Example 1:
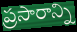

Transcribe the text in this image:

ప్రసారాన్ని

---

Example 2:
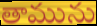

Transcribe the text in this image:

తామును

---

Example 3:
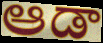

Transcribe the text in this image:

ఆడా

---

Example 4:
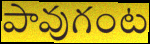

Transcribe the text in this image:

పావుగంట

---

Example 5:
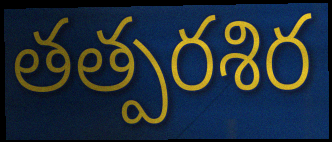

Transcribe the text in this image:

తత్పరశిర